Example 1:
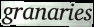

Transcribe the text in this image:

granaries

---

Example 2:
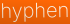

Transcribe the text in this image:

hyphen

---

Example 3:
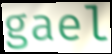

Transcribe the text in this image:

gael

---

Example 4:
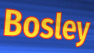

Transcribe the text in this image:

Bosley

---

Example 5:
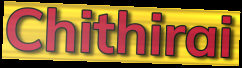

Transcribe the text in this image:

Chithirai